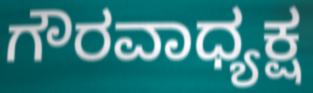
ಗೌರವಾಧ್ಯಕ್ಷ